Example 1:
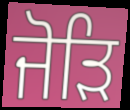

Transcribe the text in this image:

ਜੋੜਿ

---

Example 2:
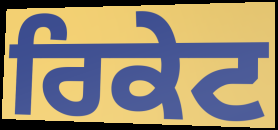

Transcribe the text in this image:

ਰਿਕੇਟ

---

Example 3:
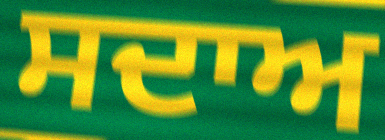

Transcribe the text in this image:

ਸਦਾਅ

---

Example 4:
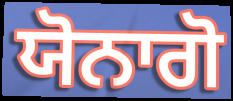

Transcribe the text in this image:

ਯੋਨਾਗੋ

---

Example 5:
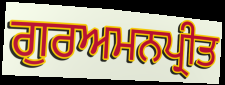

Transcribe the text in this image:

ਗੁਰਅਮਨਪ੍ਰੀਤ